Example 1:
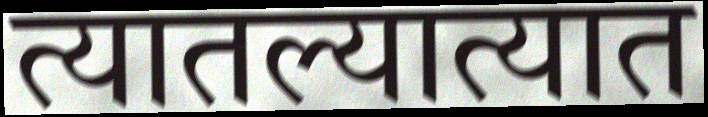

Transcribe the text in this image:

त्यातल्यात्यात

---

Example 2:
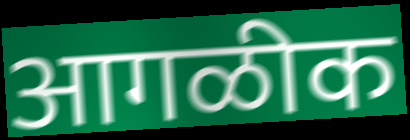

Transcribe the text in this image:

आगळीक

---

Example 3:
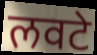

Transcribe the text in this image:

लवटे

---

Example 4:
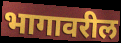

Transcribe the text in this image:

भागावरील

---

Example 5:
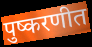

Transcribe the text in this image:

पुष्करणीत